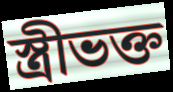
স্ত্রীভক্ত